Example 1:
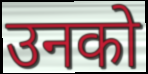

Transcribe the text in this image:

उनको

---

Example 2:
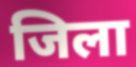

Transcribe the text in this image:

जिला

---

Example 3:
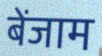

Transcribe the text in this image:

बेंजाम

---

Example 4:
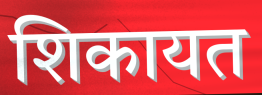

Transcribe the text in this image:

शिकायत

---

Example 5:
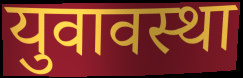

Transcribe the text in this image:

युवावस्था